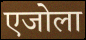
एजोला